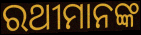
ରଥୀମାନଙ୍କ